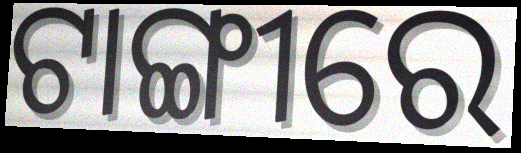
ଟାଙ୍ଗୀରେ